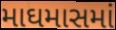
માઘમાસમાં